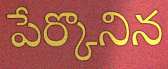
పేర్కొనిన